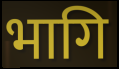
भागि